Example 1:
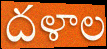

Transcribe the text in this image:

దళాల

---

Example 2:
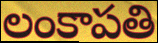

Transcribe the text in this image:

లంకాపతి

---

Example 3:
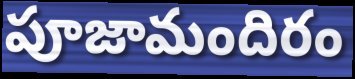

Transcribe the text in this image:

పూజామందిరం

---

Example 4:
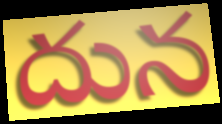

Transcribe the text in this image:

దున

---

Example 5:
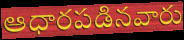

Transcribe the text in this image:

ఆధారపడినవారు